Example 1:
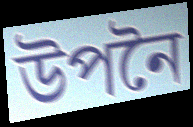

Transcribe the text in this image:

উপনৈ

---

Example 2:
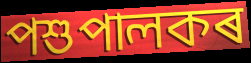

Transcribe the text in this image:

পশুপালকৰ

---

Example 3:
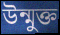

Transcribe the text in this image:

উন্মুক্ত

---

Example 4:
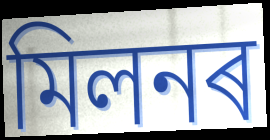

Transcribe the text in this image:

মিলনৰ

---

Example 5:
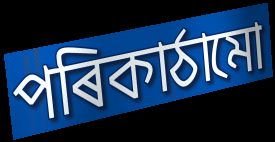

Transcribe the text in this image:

পৰিকাঠামো